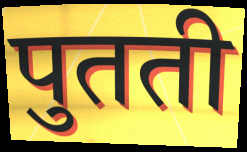
पुतती